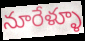
నూరేళ్ళూ